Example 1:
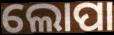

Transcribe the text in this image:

ଲୋପା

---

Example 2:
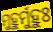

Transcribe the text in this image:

ମୁହୁର୍ମୁହୁଃ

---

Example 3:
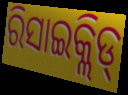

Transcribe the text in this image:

ରିସାଇକ୍ଲିଡ୍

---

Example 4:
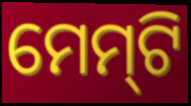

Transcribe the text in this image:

ମେମ୍‍ଟି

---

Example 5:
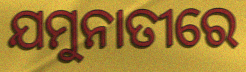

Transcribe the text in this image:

ଯମୁନାତୀରେ